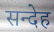
सन्देह